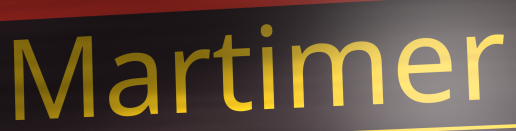
Martimer